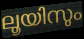
ലൂയിസും